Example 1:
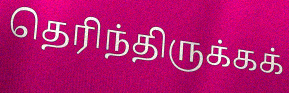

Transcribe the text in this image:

தெரிந்திருக்கக்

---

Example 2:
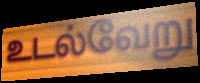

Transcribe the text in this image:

உடல்வேறு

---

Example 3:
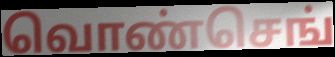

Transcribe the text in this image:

வொண்செங்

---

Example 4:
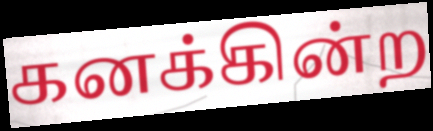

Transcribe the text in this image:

கனக்கின்ற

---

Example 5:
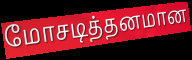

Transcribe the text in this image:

மோசடித்தனமான